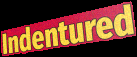
Indentured